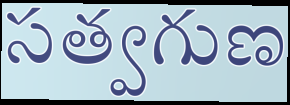
సత్వగుణ